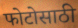
फोटोसाठी